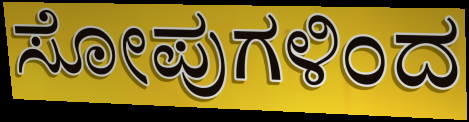
ಸೋಪುಗಳಿಂದ